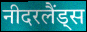
नीदरलैंड्स